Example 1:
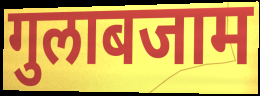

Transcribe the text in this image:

गुलाबजाम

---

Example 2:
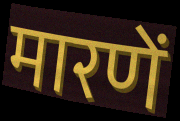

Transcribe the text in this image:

मारणें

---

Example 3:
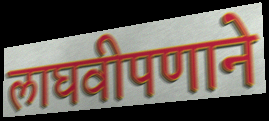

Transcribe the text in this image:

लाघवीपणाने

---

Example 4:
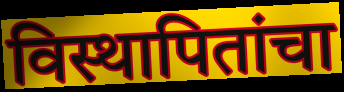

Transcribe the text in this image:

विस्थापितांचा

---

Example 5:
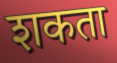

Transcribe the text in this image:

शकता